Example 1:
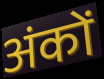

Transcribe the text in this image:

अंकों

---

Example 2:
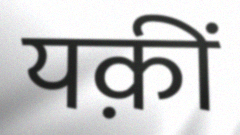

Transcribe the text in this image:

यक़ीं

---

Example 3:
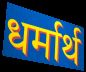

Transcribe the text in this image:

धर्मार्थ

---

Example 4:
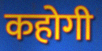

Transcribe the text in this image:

कहोगी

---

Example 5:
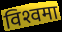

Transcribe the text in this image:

विश्वमा